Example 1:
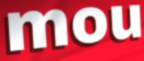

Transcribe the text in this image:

mou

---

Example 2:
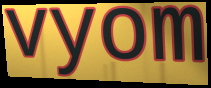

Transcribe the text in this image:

vyom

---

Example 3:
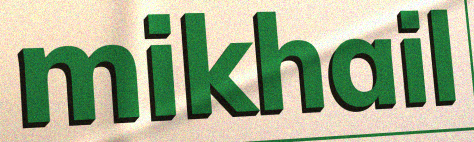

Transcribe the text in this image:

mikhail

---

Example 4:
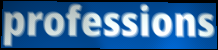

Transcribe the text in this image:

professions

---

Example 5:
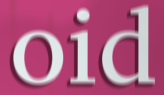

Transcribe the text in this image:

oid